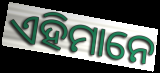
ଏହିମାନେ